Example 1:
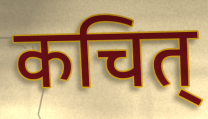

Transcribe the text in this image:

कचित्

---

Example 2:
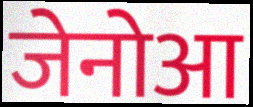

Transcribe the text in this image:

जेनोआ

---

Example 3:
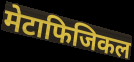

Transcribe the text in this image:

मेटाफिजिकल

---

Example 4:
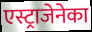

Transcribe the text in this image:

एस्ट्राजेनेका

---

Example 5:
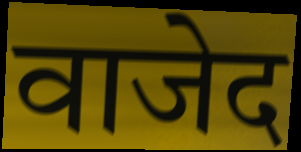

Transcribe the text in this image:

वाजेद